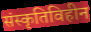
संस्कृतिविहीन